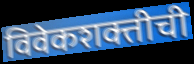
विवेकशक्तीची